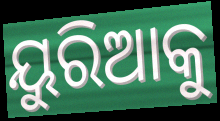
ୟୁରିଆକୁ